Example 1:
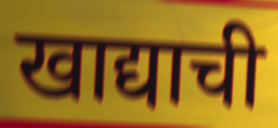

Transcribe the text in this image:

खाद्याची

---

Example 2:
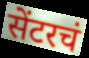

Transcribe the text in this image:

सेंटरचं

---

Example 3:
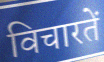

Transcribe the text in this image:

विचारतें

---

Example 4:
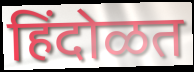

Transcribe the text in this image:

हिंदोळत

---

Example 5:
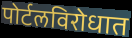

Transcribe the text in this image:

पोर्टलविरोधात